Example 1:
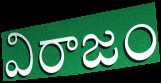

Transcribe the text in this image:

విరాజం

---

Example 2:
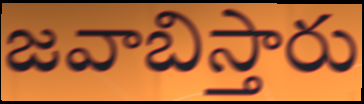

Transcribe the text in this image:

జవాబిస్తారు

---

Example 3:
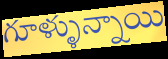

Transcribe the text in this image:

గూళ్ళున్నాయి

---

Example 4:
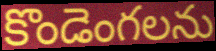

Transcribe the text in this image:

కొండెంగలను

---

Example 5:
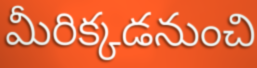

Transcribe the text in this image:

మీరిక్కడనుంచి